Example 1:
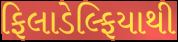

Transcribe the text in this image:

ફિલાડેલ્ફિયાથી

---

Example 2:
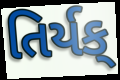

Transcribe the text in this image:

તિર્યક્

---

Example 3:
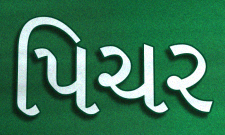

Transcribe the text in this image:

પિચર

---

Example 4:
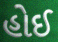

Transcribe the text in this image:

હોઈ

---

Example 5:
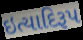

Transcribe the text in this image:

ઇત્યાદિરૂપ